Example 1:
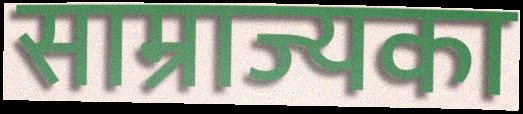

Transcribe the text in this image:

साम्राज्यका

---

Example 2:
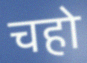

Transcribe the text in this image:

चहो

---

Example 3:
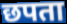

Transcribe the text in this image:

छपता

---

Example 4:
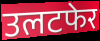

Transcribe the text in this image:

उलटफेर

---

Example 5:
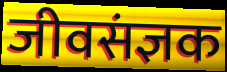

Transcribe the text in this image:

जीवसंज्ञक